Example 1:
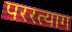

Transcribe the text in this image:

पररत्याग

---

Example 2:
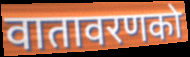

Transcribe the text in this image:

वातावरणको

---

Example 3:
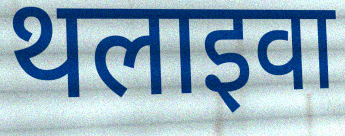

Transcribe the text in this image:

थलाइवा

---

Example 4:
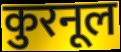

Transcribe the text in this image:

कुरनूल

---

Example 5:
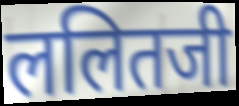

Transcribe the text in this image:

ललितजी